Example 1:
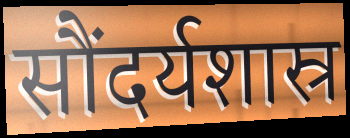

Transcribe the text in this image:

सौंदर्यशास्र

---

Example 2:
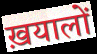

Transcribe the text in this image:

ख़यालों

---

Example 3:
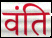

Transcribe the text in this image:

वंति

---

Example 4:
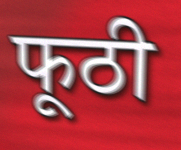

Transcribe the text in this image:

फूठी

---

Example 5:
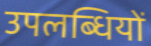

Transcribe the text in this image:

उपलब्धियों